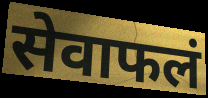
सेवाफलं